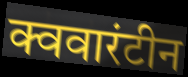
क्ववारंटीन